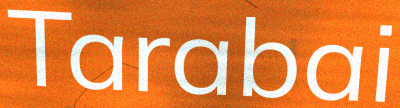
Tarabai